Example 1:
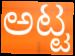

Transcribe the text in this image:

ಅಟ್ಟ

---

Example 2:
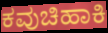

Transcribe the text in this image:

ಕವುಚಿಹಾಕಿ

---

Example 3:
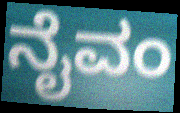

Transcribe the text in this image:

ನೈವಂ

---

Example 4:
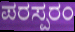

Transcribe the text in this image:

ಪರಸ್ಪರಂ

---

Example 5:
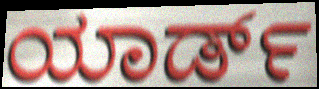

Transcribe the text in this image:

ಯಾರ್ಡ್